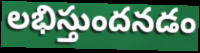
లభిస్తుందనడం